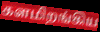
களமிறங்கிய